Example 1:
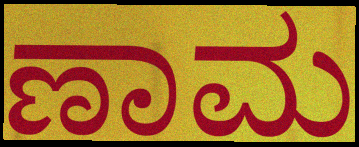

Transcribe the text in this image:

ಣಾಮ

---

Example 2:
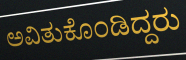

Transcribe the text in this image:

ಅವಿತುಕೊಂಡಿದ್ದರು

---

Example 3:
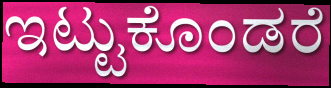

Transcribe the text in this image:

ಇಟ್ಟುಕೊಂಡರೆ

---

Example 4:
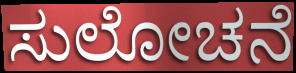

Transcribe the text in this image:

ಸುಲೋಚನೆ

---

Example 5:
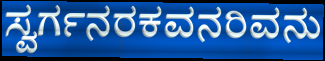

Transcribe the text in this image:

ಸ್ವರ್ಗನರಕವನರಿವನು